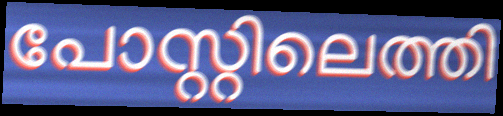
പോസ്റ്റിലെത്തി